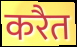
करैत